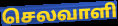
செலவாளி